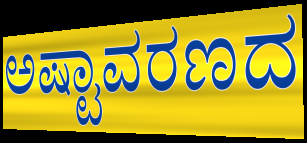
ಅಷ್ಟಾವರಣದ